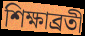
শিক্ষাব্রতী